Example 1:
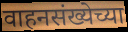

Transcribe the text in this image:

वाहनसंख्येच्या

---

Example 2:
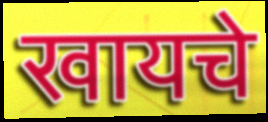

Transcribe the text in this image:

खायचे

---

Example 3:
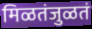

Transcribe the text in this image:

मिळतंजुळतं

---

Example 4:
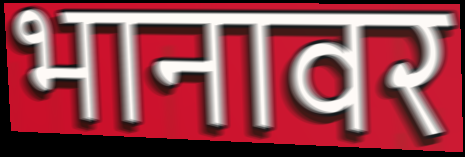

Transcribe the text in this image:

भानावर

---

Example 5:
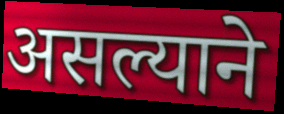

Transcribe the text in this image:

असल्‍याने